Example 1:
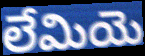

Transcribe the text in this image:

లేమియె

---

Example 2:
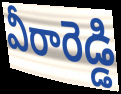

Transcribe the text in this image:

వీరారెడ్డి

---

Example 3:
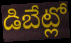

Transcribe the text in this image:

డిబేట్లో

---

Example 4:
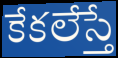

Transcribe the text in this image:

కేకలేస్తే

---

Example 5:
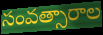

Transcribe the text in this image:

సంవత్సారాల